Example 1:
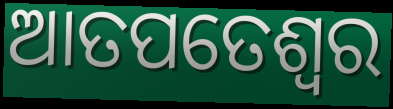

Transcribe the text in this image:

ଆତପତେଶ୍ୱର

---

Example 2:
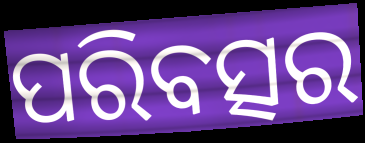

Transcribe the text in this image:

ପରିବତ୍ସର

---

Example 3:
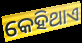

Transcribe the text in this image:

କେହିଥାଏ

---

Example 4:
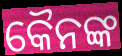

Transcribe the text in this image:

କୈନଙ୍କ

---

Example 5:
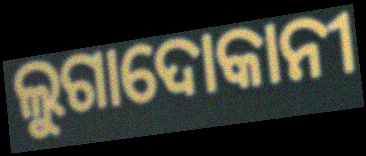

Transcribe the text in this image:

ଲୁଗାଦୋକାନୀ